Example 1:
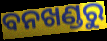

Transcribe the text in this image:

ବନଖଣ୍ଡରୁ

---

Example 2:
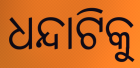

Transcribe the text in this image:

ଧନ୍ଦାଟିକୁ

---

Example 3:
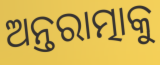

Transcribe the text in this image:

ଅନ୍ତରାତ୍ମାକୁ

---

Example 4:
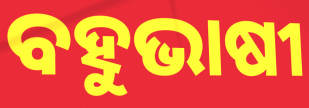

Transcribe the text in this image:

ବହୁଭାଷୀ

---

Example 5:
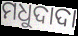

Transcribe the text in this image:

ମଧୁଦାଦା